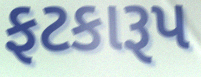
ફટકારૂપ